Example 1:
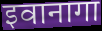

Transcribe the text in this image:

इवानागा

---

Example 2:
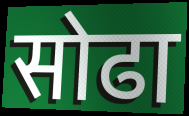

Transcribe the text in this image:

सोढा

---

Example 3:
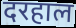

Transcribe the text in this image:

दरहाल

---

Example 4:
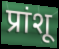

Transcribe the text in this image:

प्रांशू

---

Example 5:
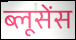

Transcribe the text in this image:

ब्लूसेंस